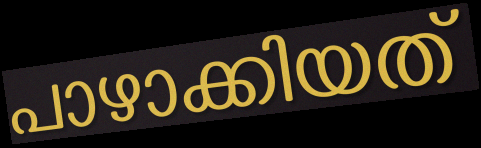
പാഴാക്കിയത്